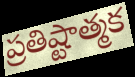
ప్రతిష్టాత్మక